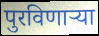
पुरविणाऱ्या